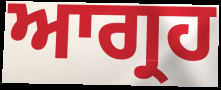
ਆਗ੍ਰਹ